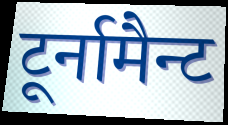
टूर्नामैन्ट